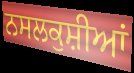
ਨਸਲਕੁਸ਼ੀਆਂ